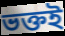
ভক্তই